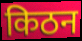
किठन